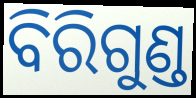
ବିରିଗୁଣ୍ଡ